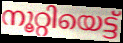
നൂറ്റിയെട്ട്